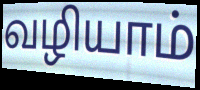
வழியாம்